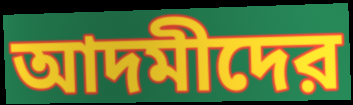
আদমীদের